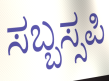
ಸಬ್ಬಸ್ಸಪಿ